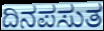
ದಿನಪಸುತ